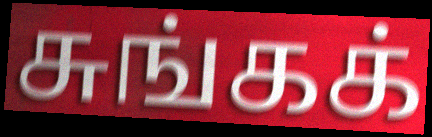
சுங்கக்